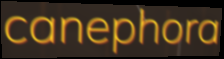
canephora